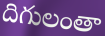
దిగులంతా